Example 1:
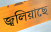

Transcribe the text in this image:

জ্বলিয়াছে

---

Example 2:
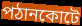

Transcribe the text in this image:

পঠানকোটে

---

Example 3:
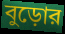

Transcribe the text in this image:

বুড়োর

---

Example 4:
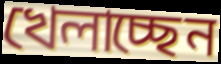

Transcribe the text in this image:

খেলাচ্ছেন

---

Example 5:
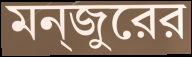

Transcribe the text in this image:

মন্জুরের